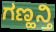
ಗಣ್ಹನ್ತಿ